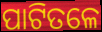
ପାଟିତଳେ